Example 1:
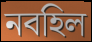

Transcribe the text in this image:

নবহিল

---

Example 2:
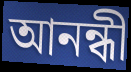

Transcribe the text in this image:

আনন্ধী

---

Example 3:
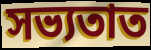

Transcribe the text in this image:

সভ্যতাত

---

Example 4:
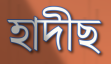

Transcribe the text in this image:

হাদীছ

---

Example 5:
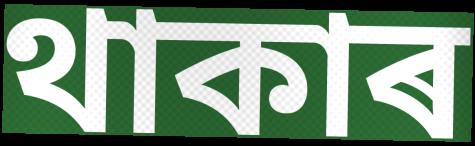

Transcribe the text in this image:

থাকাৰ